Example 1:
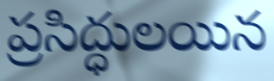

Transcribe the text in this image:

ప్రసిద్ధులయిన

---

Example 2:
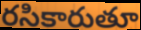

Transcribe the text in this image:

రసికారుతూ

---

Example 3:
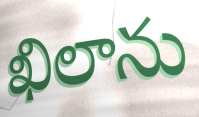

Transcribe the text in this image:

ఖిలాను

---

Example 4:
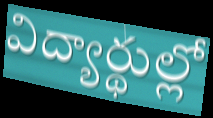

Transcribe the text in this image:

విద్యార్థుల్లో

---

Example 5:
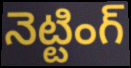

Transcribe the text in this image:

నెట్టింగ్